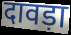
दावड़ा